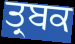
ਤ੍ਰਬਕ